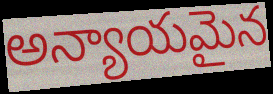
అన్యాయమైన